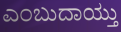
ಎಂಬುದಾಯ್ತು